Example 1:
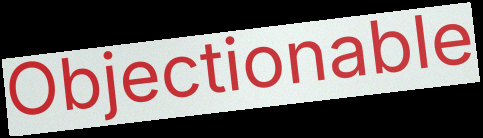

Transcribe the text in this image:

Objectionable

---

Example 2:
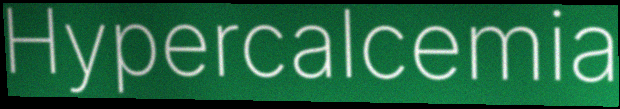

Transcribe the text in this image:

Hypercalcemia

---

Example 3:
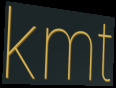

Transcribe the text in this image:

kmt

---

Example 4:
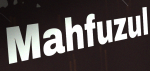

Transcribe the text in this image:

Mahfuzul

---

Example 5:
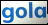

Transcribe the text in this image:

gola